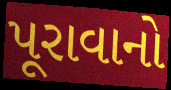
પૂરાવાનો